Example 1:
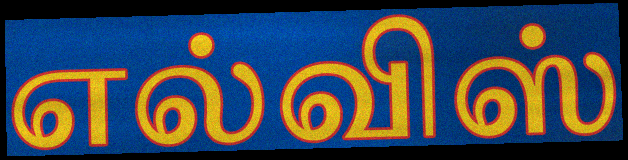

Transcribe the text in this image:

எல்விஸ்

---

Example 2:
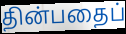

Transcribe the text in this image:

தின்பதைப்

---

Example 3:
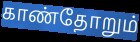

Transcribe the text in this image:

காண்தோறும்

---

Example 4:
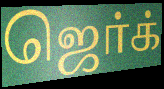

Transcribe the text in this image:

ஜெர்க்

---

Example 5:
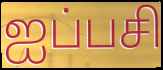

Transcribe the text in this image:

ஐப்பசி